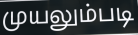
முயலும்படி